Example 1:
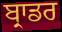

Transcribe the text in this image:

ਬ੍ਰਾਡਰ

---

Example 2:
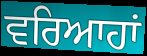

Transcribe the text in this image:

ਵਰਿਆਹਾਂ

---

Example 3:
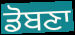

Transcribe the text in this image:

ਡੋਬਣਾ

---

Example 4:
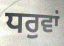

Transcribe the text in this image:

ਧਰੁਵਾਂ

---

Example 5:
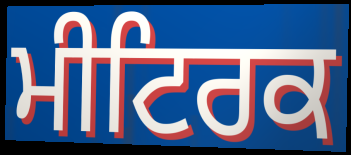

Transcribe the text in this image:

ਮੀਟਿਰਕ